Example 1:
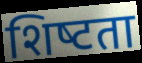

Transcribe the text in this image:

शिष्‍टता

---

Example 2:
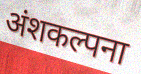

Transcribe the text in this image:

अंशकल्पना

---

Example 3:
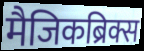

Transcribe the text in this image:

मैजिकब्रिक्स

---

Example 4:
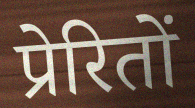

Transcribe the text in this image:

प्रेरितों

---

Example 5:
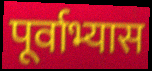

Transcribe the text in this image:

पूर्वाभ्यास